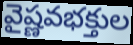
వైష్ణవభక్తుల